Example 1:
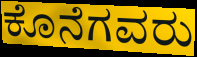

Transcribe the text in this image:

ಕೊನೆಗವರು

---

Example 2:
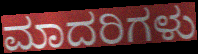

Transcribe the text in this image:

ಮಾದರಿಗಳು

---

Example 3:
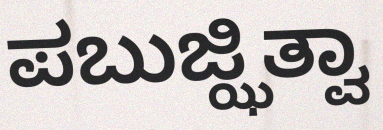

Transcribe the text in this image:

ಪಬುಜ್ಝಿತ್ವಾ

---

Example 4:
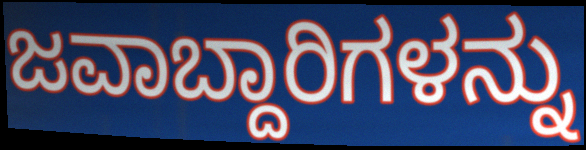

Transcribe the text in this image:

ಜವಾಬ್ದಾರಿಗಳನ್ನು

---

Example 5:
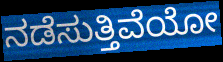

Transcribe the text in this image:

ನಡೆಸುತ್ತಿವೆಯೋ